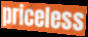
priceless